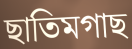
ছাতিমগাছ